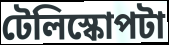
টেলিস্কোপটা